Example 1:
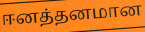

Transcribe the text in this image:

ஈனத்தனமான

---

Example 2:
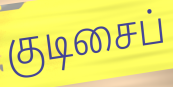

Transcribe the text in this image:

குடிசைப்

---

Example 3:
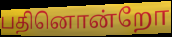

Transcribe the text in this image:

பதினொன்றோ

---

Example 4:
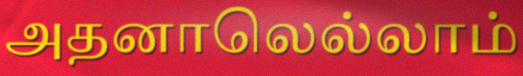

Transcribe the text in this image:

அதனாலெல்லாம்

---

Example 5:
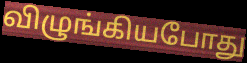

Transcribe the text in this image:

விழுங்கியபோது